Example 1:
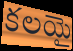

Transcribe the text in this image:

కలయై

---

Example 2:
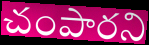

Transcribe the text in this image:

చంపారని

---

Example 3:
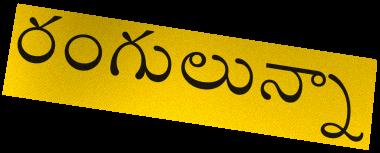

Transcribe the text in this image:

రంగులున్నా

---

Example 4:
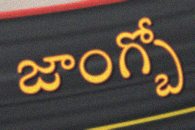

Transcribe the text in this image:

జాంగ్బో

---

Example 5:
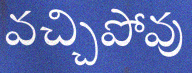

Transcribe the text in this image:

వచ్చిపోవు